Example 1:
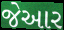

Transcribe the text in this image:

જેઆર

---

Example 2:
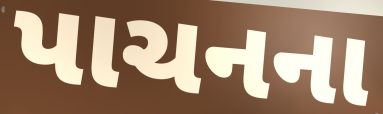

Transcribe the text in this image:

પાચનના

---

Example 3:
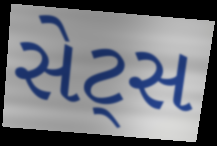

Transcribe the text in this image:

સેટ્સ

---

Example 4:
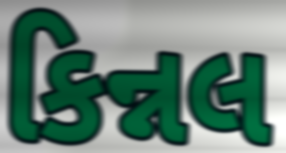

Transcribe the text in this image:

કિન્નલ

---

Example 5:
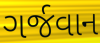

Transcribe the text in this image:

ગર્જવાન